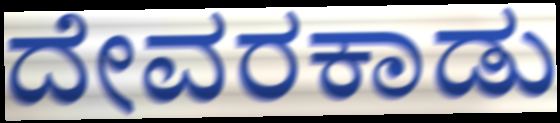
ದೇವರಕಾಡು